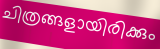
ചിത്രങ്ങളായിരിക്കും